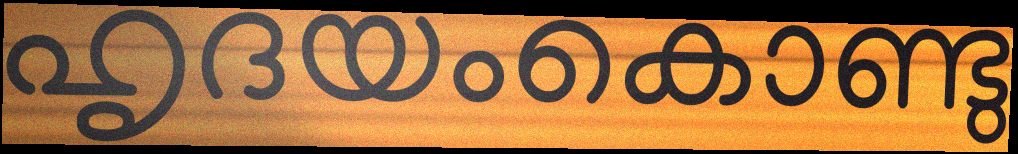
ഹൃദയംകൊണ്ടു